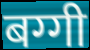
बग्‍गी